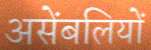
असेंबलियों